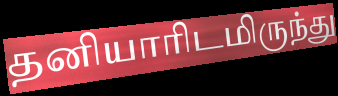
தனியாரிடமிருந்து